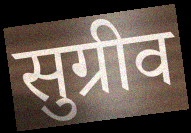
सुग्रीव